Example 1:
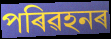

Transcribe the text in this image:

পৰিৱহনৰ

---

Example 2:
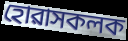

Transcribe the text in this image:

হোৱাসকলক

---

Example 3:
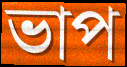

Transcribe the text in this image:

ভাপ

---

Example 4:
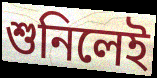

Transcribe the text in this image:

শুনিলেই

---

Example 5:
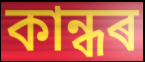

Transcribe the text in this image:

কান্ধৰ